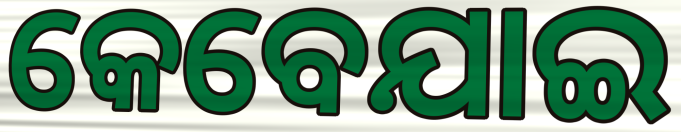
କେବେଯାଇ